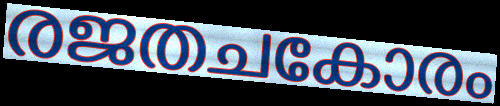
രജതചകോരം